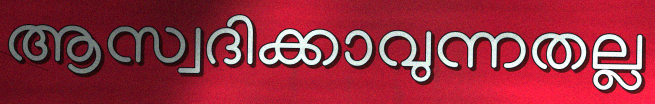
ആസ്വദിക്കാവുന്നതല്ല